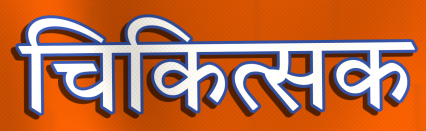
चिकित्सक